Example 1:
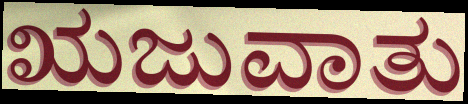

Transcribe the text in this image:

ಋಜುವಾತು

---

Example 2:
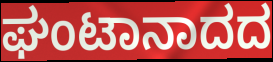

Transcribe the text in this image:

ಘಂಟಾನಾದದ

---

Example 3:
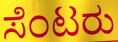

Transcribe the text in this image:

ಸೆಂಟರು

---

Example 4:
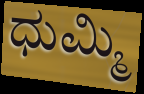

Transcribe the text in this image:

ಧುಮ್ಮಿ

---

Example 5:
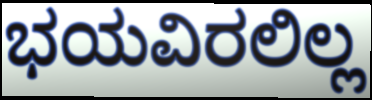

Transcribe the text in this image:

ಭಯವಿರಲಿಲ್ಲ